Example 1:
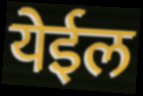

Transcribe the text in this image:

येईल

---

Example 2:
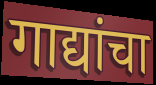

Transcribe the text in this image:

गाद्यांचा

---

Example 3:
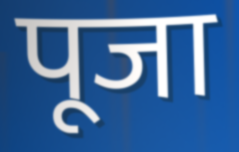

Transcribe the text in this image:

पूजा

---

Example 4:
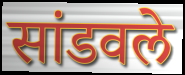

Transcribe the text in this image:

सांडवले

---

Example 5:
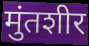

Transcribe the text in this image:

मुंतशीर